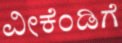
ವೀಕೆಂಡಿಗೆ